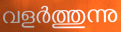
വളർത്തുന്നു